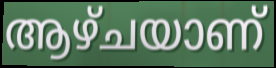
ആഴ്ചയാണ്